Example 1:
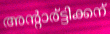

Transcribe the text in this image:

അന്റാര്ട്ടിക്കന്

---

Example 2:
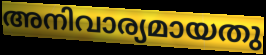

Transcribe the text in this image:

അനിവാര്യമായതു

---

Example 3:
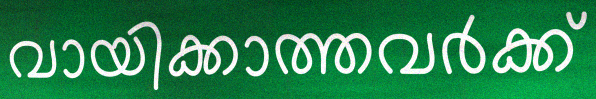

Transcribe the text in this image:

വായിക്കാത്തവർക്ക്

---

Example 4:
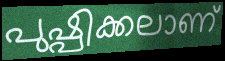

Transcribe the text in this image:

പുഷ്പിക്കലാണ്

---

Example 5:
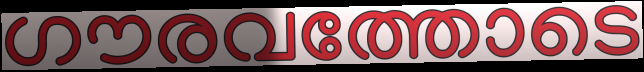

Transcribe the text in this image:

ഗൗരവത്തോടെ